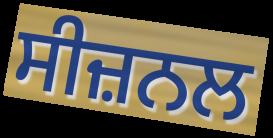
ਸੀਜ਼ਨਲ